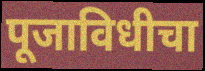
पूजाविधीचा